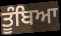
ਤੂੰਬਿਆ